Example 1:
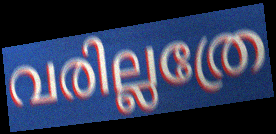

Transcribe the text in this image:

വരില്ലത്രേ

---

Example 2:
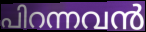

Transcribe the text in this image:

പിറന്നവൻ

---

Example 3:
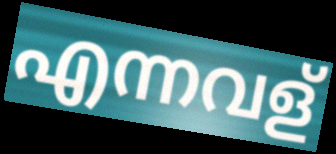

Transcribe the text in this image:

എന്നവള്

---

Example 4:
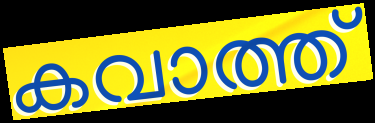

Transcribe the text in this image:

കവാത്ത്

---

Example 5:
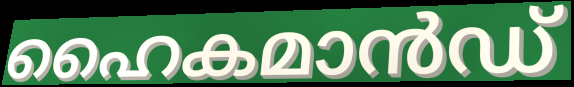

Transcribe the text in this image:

ഹൈകമാൻഡ്